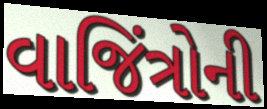
વાજિંત્રોની